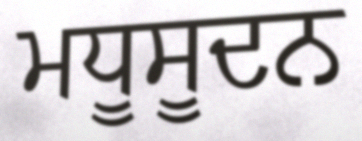
ਮਧੂਸੂਦਨ